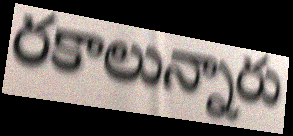
రకాలున్నారు